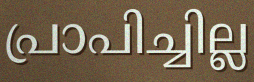
പ്രാപിച്ചില്ല